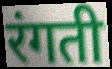
रंगती